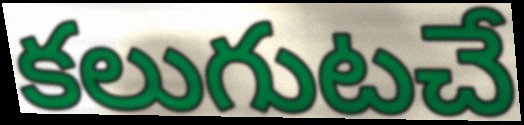
కలుగుటచే